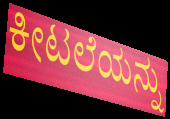
ಕೀಟಲೆಯನ್ನು